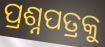
ପ୍ରଶ୍ନପତ୍ରକୁ